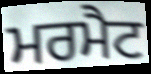
ਮਰਮੈਟ